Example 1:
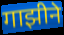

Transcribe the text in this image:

गाझीने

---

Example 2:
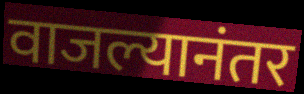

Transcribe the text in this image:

वाजल्यानंतर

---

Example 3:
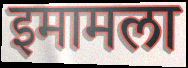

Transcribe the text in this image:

इमामला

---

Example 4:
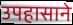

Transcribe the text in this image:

उपहासाने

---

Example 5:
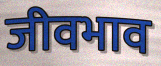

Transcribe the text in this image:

जीवभाव